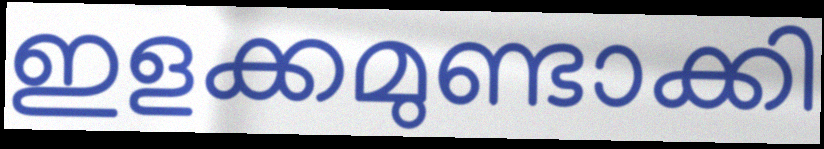
ഇളക്കമുണ്ടാക്കി